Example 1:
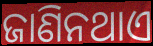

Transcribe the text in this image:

ଜାଣିନଥାଏ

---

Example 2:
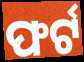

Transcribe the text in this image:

ଫର୍ଟ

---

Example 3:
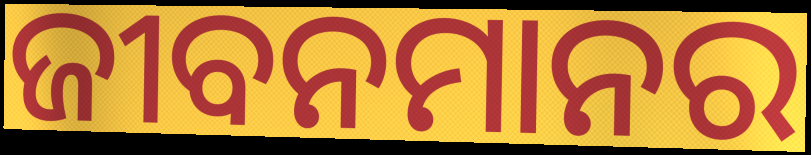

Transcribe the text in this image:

ଜୀବନମାନର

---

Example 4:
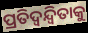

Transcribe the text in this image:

ପ୍ରତିଦ୍ୱନ୍ଦ୍ୱିତାକୁ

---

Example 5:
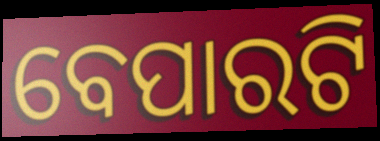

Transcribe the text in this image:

ବେପାରଟି